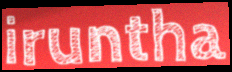
iruntha